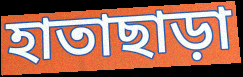
হাতাছাড়া